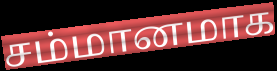
சம்மானமாக